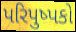
પરિપુષ્પકો